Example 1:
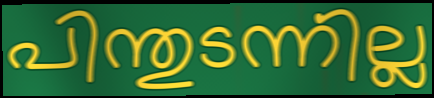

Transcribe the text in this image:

പിന്തുടൎന്നില്ല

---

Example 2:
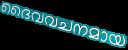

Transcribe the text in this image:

ദൈവവചനമായ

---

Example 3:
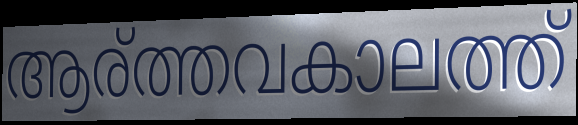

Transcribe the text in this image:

ആര്ത്തവകാലത്ത്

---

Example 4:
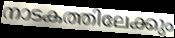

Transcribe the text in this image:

നാടകത്തിലേക്കും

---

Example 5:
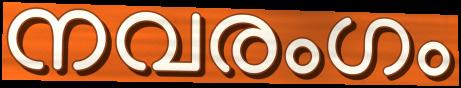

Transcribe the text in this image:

നവരംഗം